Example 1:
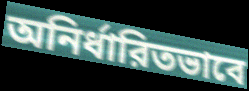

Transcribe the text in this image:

অনির্ধারিতভাবে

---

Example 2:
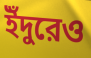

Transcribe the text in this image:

ইঁদুরেও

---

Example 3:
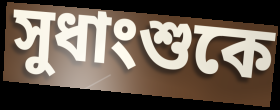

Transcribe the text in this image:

সুধাংশুকে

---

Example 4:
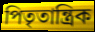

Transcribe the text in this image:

পিতৃতান্ত্রিক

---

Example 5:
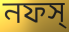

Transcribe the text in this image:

নফস্